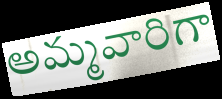
అమ్మవారిగా